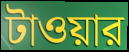
টাওয়ার